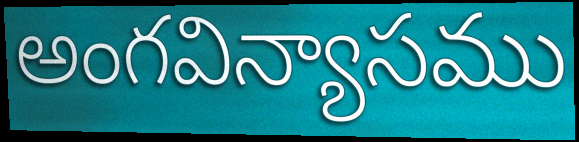
అంగవిన్యాసము